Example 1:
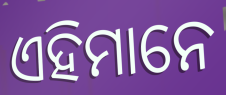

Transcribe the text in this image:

ଏହିମାନେ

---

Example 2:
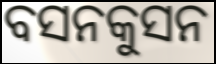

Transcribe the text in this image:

ବସନକୁସନ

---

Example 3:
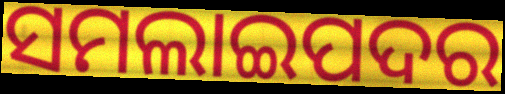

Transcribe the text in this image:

ସମଲାଇପଦର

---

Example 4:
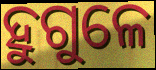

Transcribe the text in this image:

ହୁଗୁଳେ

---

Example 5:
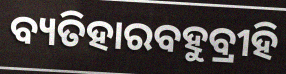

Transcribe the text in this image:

ବ୍ୟତିହାରବହୁବ୍ରୀହି